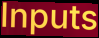
Inputs